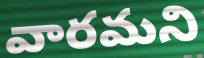
వారమని